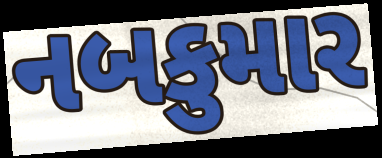
નબકુમાર